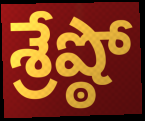
శ్రేష్ఠో